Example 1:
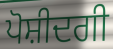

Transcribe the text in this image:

ਪੋਸ਼ੀਦਗੀ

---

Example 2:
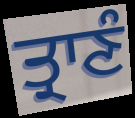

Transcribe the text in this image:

ਤ੍ਰਾਣੰ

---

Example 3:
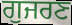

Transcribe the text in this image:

ਗੁਜਰਣ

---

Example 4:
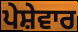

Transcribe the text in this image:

ਪੇਸ਼ੇਵਾਰ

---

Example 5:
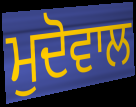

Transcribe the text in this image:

ਮੁਦੋਵਾਲ